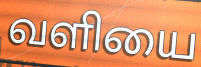
வளியை